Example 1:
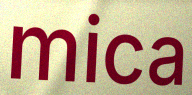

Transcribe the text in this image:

mica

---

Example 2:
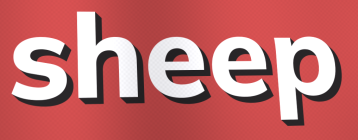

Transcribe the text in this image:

sheep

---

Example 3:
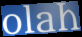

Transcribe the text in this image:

olah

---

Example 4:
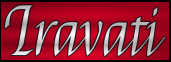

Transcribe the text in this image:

Iravati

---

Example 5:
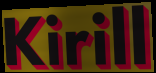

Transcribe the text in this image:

Kirill